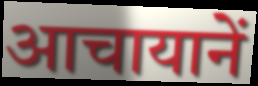
आचायानें